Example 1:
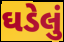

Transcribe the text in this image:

ઘડેલું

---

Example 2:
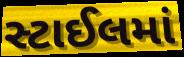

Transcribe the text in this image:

સ્ટાઈલમાં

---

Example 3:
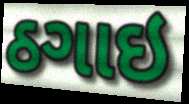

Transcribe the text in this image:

ઠગાઇ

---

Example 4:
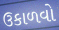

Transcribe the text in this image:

ઉકાળવો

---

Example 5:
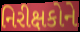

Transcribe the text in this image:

નિરીક્ષકોને